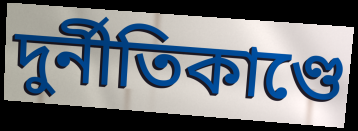
দুর্নীতিকাণ্ডে